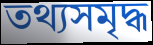
তথ্যসমৃদ্ধ